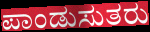
ಪಾಂಡುಸುತರು